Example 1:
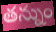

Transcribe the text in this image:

తన్నుం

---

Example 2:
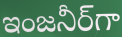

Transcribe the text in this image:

ఇంజనీర్‌గా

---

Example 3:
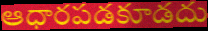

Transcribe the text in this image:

ఆధారపడకూడదు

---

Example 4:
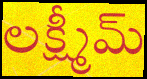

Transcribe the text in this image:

లక్ష్మీమ్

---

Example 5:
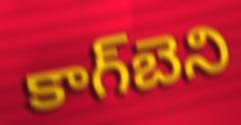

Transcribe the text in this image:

కాగ్‌బెని